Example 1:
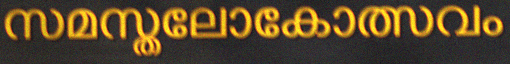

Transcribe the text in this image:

സമസ്തലോകോത്സവം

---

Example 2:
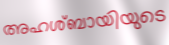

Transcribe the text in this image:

അഹശ്ബായിയുടെ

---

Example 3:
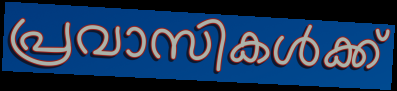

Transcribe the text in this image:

പ്രവാസികൾക്ക്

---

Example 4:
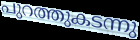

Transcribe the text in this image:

പുറത്തുകടന്നു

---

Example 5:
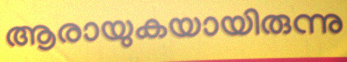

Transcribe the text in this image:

ആരായുകയായിരുന്നു